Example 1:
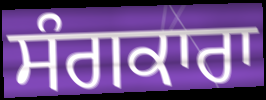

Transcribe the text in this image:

ਸੰਗਕਾਰਾ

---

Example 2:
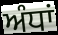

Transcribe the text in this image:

ਅੰਧਾਂ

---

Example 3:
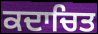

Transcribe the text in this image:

ਕਦਾਚਿਤ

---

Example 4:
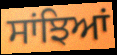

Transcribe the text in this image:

ਸਾਂਝਿਆਂ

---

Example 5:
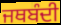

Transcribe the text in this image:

ਜਥਬੰਦੀ